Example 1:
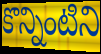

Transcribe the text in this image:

కొన్నింటిని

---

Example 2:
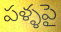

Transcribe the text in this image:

పళ్ళపై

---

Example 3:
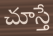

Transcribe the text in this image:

చూస్తే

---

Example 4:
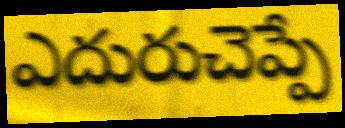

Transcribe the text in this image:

ఎదురుచెప్పే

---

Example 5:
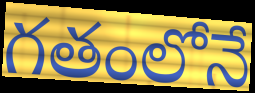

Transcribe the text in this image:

గతంలోనే